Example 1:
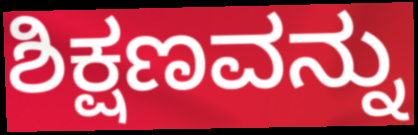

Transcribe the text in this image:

ಶಿಕ್ಷಣವನ್ನು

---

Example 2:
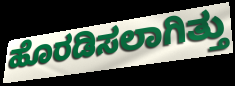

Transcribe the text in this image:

ಹೊರಡಿಸಲಾಗಿತ್ತು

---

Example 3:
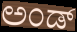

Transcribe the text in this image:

ಅಂಡ್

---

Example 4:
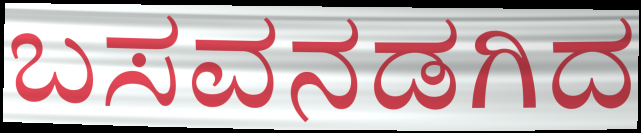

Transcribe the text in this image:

ಬಸವನಡಗಿದ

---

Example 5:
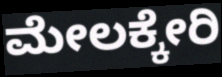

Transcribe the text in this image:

ಮೇಲಕ್ಕೇರಿ